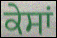
ਕੇਸਾਂ